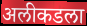
अलीकडला